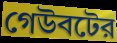
গেউবটের